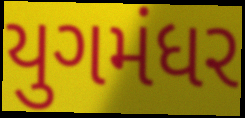
યુગમંધર